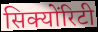
सिक्योंरिटी